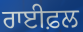
ਰਾਈਫ਼ਲ